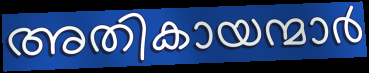
അതികായന്മാർ